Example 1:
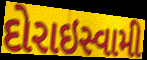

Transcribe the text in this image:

દોરાઇસ્વામી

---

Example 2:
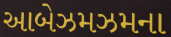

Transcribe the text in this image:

આબેઝમઝમના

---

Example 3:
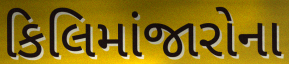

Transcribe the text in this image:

કિલિમાંજારોના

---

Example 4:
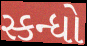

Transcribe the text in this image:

સ્કન્ધો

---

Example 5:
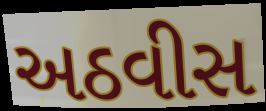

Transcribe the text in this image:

અઠવીસ